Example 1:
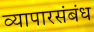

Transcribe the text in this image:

व्यापारसंबंध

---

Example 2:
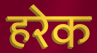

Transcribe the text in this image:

हरेक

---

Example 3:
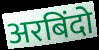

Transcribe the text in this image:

अरबिंदो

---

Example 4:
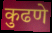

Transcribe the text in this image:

कुढणे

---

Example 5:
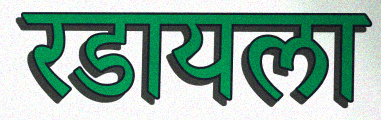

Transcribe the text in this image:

रडायला